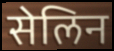
सेलिन